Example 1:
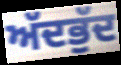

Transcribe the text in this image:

ਅੱਦਭੁੱਦ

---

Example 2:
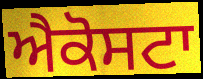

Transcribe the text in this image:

ਐਕੋਸਟਾ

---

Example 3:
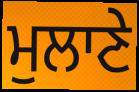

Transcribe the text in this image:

ਮੁਲਾਣੇ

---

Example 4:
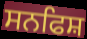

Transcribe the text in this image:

ਸਨਫਿਸ਼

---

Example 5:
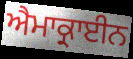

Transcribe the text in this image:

ਐਮਾਕ੍ਰਾਈਨ